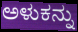
ಅಳುಕನ್ನು